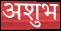
अशुभ